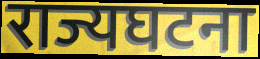
राज्यघटना